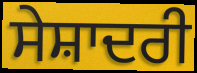
ਸੇਸ਼ਾਦਰੀ